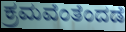
ಕ್ರಮವೆಂತೆಂದಡೆ